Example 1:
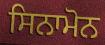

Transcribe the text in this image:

ਸਿਨਾਮੋਨ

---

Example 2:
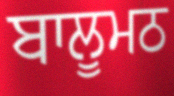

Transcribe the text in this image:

ਬਾਲੂਮਠ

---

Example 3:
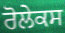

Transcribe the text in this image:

ਰੋਲੇਕਸ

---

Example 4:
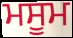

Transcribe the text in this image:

ਮਸੂਮ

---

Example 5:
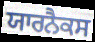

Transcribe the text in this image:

ਯਾਰਨੈਕਸ